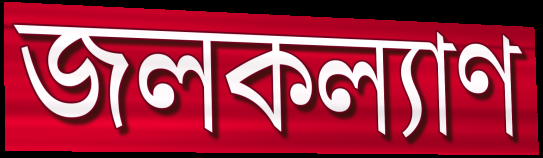
জলকল্যাণ